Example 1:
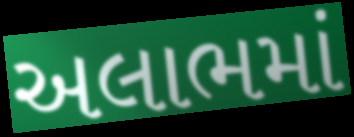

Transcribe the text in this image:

અલાભમાં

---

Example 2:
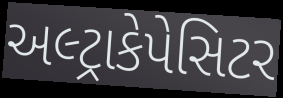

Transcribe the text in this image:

અલ્ટ્રાકેપેસિટર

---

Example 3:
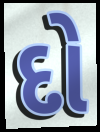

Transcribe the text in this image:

દો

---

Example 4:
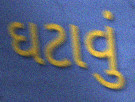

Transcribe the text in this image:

ઘટાવું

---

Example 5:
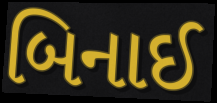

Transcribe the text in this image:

બિનાઈ